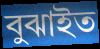
বুঝাইত